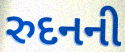
રુદનની